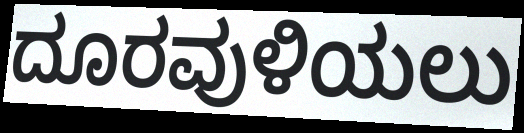
ದೂರವುಳಿಯಲು